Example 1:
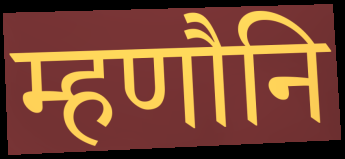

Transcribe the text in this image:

म्हणौनि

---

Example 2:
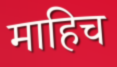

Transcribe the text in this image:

माहिच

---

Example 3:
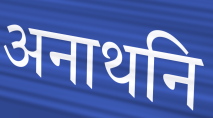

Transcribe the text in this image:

अनाथनि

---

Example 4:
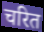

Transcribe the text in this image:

चरित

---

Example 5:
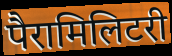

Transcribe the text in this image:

पैरामिलिटरी